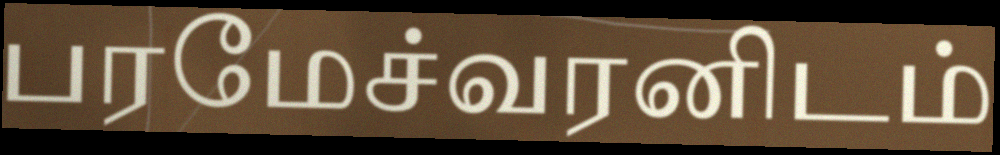
பரமேச்வரனிடம்